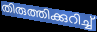
തിരുത്തിക്കുറിച്ച്